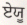
ਏਯੂ